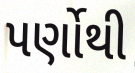
પર્ણોથી